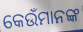
କେଉଁମାନଙ୍କ